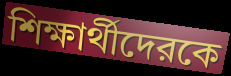
শিক্ষার্থীদেরকে